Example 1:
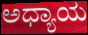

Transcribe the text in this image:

ಅಧ್ಯಾಯ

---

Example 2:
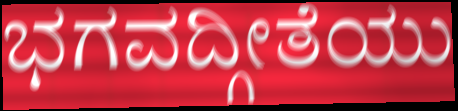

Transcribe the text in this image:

ಭಗವದ್ಗೀತೆಯು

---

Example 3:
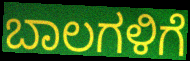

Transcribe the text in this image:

ಬಾಲಗಳಿಗೆ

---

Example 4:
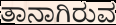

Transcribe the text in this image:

ತಾನಾಗಿರುವ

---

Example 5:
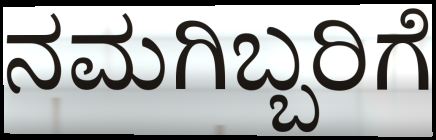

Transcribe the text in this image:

ನಮಗಿಬ್ಬರಿಗೆ